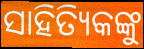
ସାହିତ୍ୟିକଙ୍କୁ